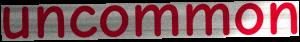
uncommon